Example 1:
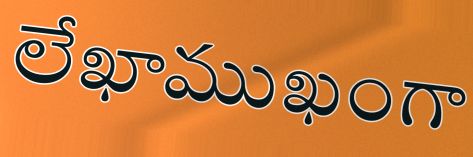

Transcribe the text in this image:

లేఖాముఖంగా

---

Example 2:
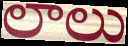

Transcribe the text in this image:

లాలు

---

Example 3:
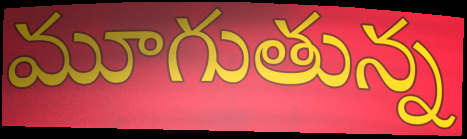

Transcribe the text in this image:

మూగుతున్న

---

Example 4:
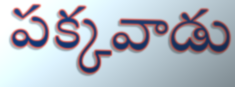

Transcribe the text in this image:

పక్కవాడు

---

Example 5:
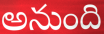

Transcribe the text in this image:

అనుంది